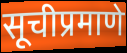
सूचीप्रमाणे